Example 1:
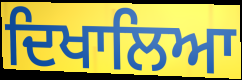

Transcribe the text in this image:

ਦਿਖਾਲਿਆ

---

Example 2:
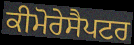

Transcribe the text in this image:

ਕੀਮੋਰੇਸੈਪਟਰ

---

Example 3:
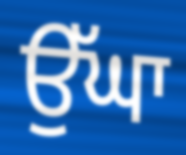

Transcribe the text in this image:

ਉੱਘਾ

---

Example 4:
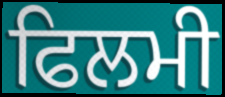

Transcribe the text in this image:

ਫਿਲਮੀ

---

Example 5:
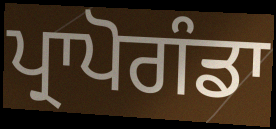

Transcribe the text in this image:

ਪ੍ਰਾਪੋਗੰਡਾ